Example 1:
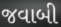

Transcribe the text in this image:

જવાબી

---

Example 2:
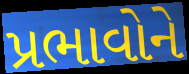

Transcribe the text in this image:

પ્રભાવોને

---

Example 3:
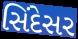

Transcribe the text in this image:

સિંદેસર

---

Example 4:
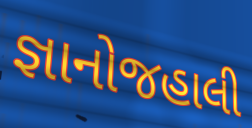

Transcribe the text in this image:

જ્ઞાનોજહાલી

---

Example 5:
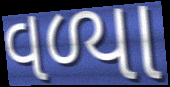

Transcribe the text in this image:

વળ્યા